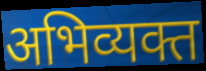
अभिव्यक्त